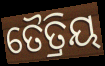
ତୈତ୍ରିୟ